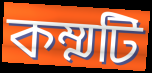
কম্মটি